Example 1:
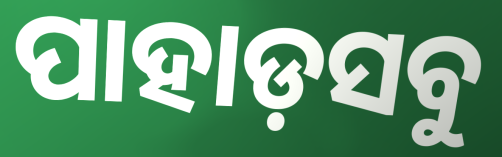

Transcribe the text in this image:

ପାହାଡ଼ସବୁ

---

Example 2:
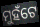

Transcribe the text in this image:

ମୁହଁଟେ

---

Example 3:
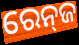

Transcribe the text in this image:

ରେନ୍‍ଜ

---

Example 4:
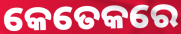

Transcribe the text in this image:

କେତେକରେ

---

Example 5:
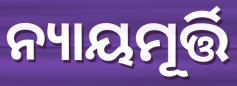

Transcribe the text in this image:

ନ୍ୟାୟମୂର୍ତ୍ତି